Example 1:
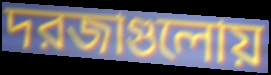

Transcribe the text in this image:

দরজাগুলোয়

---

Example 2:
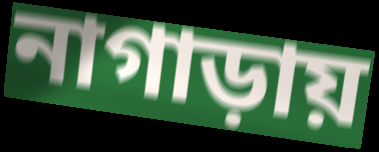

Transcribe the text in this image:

নাগাড়ায়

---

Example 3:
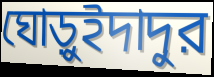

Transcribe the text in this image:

ঘোড়ুইদাদুর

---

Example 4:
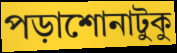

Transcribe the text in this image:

পড়াশোনাটুকু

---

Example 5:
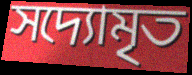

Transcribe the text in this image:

সদ্যোমৃত